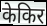
केकिर